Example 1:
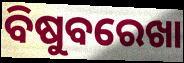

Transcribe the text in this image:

ବିଷୁବରେଖା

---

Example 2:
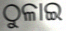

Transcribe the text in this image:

ଠୁଳାଇ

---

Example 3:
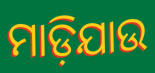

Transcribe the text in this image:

ମାଡ଼ିଯାଉ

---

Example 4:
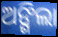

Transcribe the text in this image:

ଅଙ୍ଗିଲା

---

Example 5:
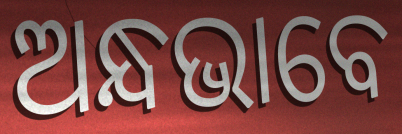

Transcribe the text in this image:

ଅନ୍ଧଭାବେ